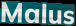
Malus